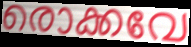
രൊക്കവേ